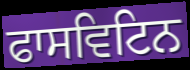
ਫਾਸਵਿਟਿਨ